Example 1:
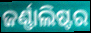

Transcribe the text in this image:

ଜର୍ଣ୍ଣାଲିଷ୍ଟର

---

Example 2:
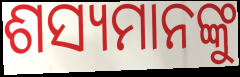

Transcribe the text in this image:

ଶସ୍ୟମାନଙ୍କୁ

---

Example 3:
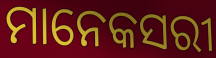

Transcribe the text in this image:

ମାନେକସରୀ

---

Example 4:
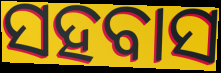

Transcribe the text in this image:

ସହବାସ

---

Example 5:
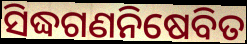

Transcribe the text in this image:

ସିଦ୍ଧଗଣନିଷେବିତ